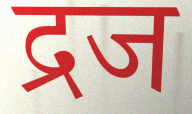
द्रज